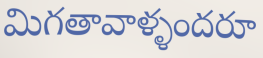
మిగతావాళ్ళందరూ